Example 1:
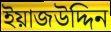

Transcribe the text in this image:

ইয়াজউদ্দিন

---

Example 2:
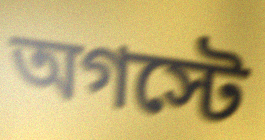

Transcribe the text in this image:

অগস্টে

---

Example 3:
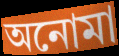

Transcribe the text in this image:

অনোমা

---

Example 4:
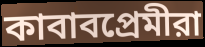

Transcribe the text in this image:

কাবাবপ্রেমীরা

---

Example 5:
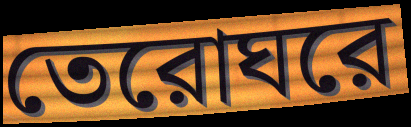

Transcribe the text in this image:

তেরোঘরে